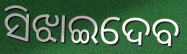
ସିଝାଇଦେବ